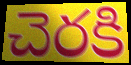
చెరకి